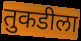
तुकडीला